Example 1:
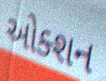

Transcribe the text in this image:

ઓક્શન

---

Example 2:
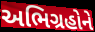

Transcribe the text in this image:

અભિગ્રહોને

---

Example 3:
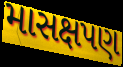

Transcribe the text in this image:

માસક્ષપણ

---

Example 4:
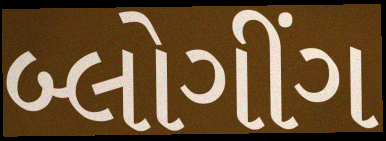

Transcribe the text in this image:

બ્લોગીંગ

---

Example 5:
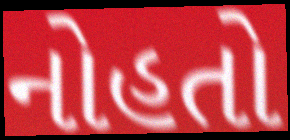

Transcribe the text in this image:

નોહતો